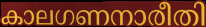
കാലഗണനാരീതി